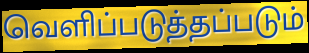
வெளிப்படுத்தப்படும்